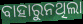
ବାହାରୁନଥିଲା